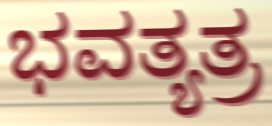
ಭವತ್ಯತ್ರ